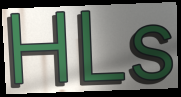
HLs